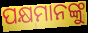
ପକ୍ଷମାନଙ୍କୁ